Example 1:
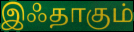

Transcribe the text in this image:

இஃதாகும்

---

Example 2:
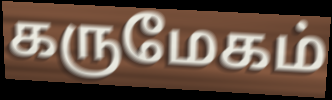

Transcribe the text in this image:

கருமேகம்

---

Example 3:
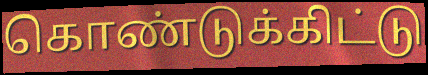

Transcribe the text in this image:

கொண்டுக்கிட்டு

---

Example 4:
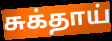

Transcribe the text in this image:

சுக்தாய்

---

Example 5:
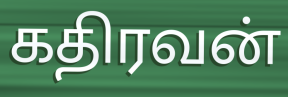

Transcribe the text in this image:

கதிரவன்